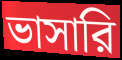
ভাসারি